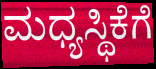
ಮಧ್ಯಸ್ಥಿಕೆಗೆ